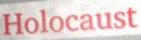
Holocaust